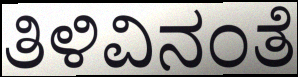
ತಿಳಿವಿನಂತೆ